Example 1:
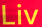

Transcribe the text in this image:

Liv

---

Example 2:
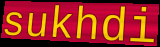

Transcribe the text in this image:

sukhdi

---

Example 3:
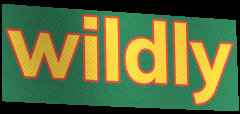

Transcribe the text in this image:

wildly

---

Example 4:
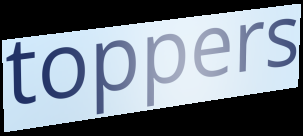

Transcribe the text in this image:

toppers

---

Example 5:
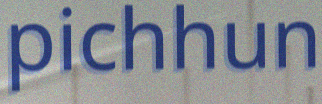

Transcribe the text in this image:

pichhun